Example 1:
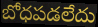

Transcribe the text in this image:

బోధపడలేదు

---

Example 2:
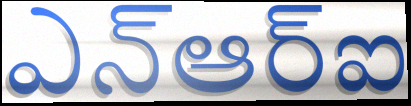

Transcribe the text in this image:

ఎన్ఆర్ఐ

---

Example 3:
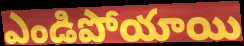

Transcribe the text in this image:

ఎండిపోయాయి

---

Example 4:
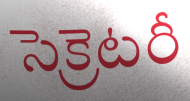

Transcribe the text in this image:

సెక్రెటరీ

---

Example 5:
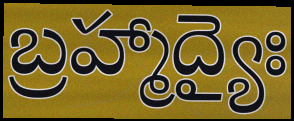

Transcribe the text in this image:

బ్రహ్మాద్యైః